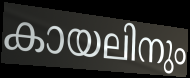
കായലിനും